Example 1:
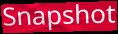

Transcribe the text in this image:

Snapshot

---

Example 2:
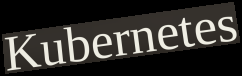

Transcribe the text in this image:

Kubernetes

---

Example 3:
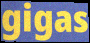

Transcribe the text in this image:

gigas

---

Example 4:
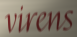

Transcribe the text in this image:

virens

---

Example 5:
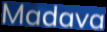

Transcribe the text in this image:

Madava